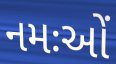
નમઃઓં